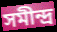
সমীন্দ্ৰ